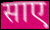
साए